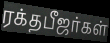
ரக்தபீஜர்கள்